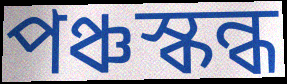
পঞ্চস্কন্ধ